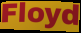
Floyd